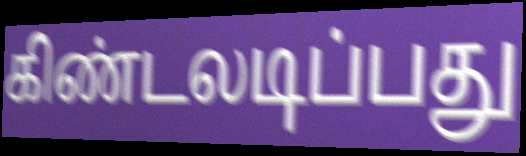
கிண்டலடிப்பது